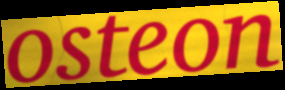
osteon